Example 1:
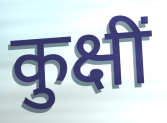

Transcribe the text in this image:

कुक्षीं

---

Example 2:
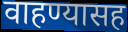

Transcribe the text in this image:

वाहण्यासह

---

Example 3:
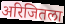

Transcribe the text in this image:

अरिजितला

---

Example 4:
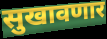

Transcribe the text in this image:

सुखावणार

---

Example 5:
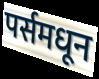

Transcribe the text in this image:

पर्समधून